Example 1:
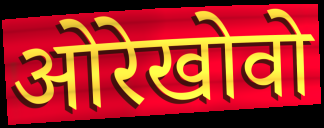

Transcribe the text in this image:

ओरेखोवो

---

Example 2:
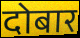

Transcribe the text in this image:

दोबार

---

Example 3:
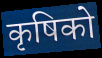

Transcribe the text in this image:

कृषिको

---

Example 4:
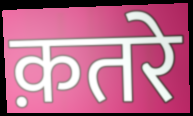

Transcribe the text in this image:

क़तरे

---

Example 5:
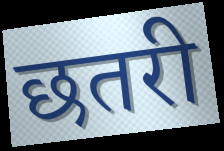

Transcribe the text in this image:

छतरी